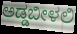
ಅಡ್ಡಬೀಳಲಿ